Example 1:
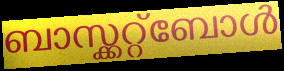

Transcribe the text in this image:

ബാസ്ക്കറ്റ്ബോൾ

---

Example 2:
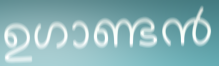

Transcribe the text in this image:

ഉഗാണ്ടൻ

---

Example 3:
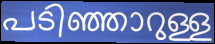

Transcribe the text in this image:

പടിഞ്ഞാറുള്ള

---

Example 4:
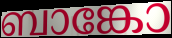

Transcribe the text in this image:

ബാങ്കോ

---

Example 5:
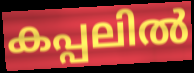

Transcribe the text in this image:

കപ്പലിൽ